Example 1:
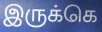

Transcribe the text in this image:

இருக்கெ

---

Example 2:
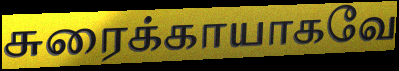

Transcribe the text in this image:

சுரைக்காயாகவே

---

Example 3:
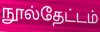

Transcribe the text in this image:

நூல்தேட்டம்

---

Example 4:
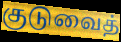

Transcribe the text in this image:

குடுவைத்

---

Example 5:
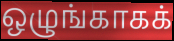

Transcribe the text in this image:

ஒழுங்காகக்